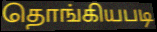
தொங்கியபடி